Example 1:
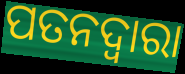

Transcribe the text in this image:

ପତନଦ୍ୱାରା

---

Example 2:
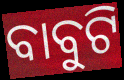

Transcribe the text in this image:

ବାବୁଟି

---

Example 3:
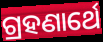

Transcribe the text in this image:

ଗ୍ରହଣାର୍ଥେ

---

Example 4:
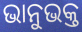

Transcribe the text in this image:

ଭାନୁଭକ୍ତ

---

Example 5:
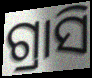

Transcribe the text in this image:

ଗ୍ରାସି